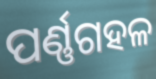
ପର୍ଣ୍ଣଗହଳ